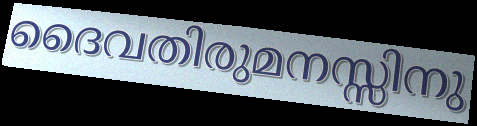
ദൈവതിരുമനസ്സിനു